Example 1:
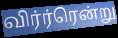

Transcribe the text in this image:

விர்ர்ரென்று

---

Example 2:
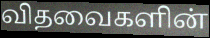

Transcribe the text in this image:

விதவைகளின்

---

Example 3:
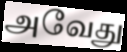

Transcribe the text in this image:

அவேது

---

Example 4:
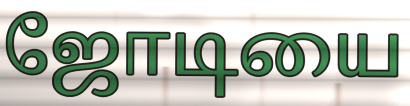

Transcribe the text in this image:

ஜோடியை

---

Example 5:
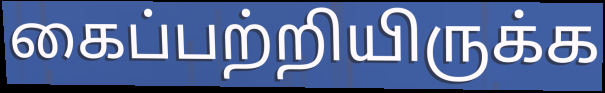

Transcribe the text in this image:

கைப்பற்றியிருக்க